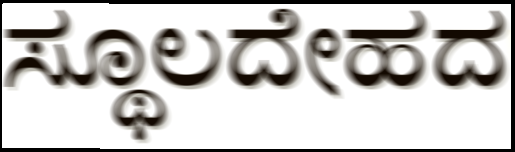
ಸ್ಥೂಲದೇಹದ